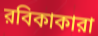
রবিকাকারা